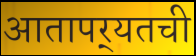
आतापर्यतची